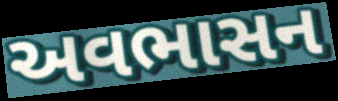
અવભાસન